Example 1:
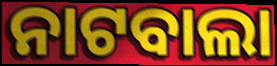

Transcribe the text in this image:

ନାଟବାଲା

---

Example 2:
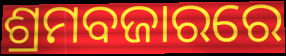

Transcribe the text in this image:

ଶ୍ରମବଜାରରେ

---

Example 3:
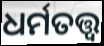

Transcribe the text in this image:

ଧର୍ମତତ୍ତ୍ଵ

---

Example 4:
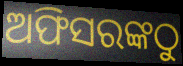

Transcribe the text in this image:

ଅଫିସରଙ୍କଠୁ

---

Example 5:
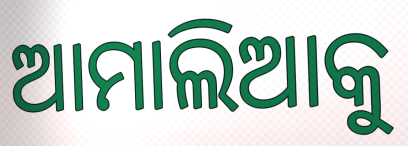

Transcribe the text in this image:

ଆମାଲିଆକୁ